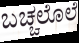
ಬಚ್ಚಲೊಲೆ